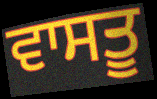
ਵਾਸਤੂ